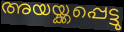
അയയ്ക്കപ്പെട്ടു